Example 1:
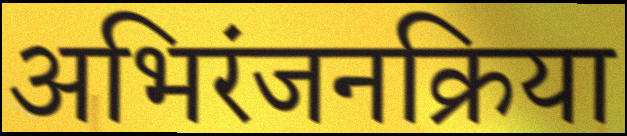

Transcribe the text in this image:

अभिरंजनक्रिया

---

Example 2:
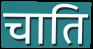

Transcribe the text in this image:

चाति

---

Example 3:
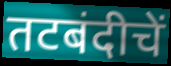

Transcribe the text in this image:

तटबंदीचें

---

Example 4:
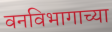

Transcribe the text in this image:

वनविभागाच्या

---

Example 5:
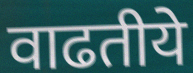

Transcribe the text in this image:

वाढतीये